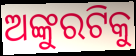
ଅଙ୍କୁରଟିକୁ